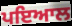
ਪਇਆਲ